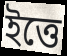
ইত্তে